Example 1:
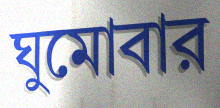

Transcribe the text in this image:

ঘুমোবার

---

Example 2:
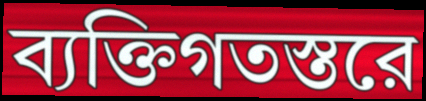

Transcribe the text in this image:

ব্যক্তিগতস্তরে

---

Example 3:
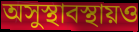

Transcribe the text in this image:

অসুস্থাবস্থায়ও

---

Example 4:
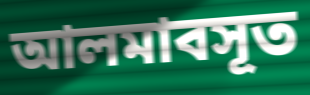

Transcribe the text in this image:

আলমাবসূত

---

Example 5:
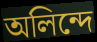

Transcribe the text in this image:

অলিন্দে